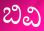
ಬಿವಿ